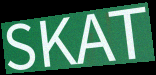
SKAT